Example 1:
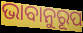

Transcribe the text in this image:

ଭାବାନୁରୂପ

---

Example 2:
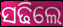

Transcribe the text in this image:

ସଢିଲେ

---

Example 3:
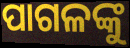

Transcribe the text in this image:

ପାଗଳଙ୍କୁ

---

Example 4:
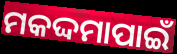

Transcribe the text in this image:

ମକଦ୍ଦମାପାଇଁ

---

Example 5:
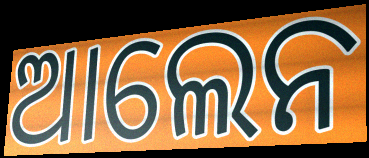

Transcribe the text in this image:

ଆଲେନ